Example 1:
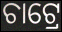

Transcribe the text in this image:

ଚାଟ୍ରେ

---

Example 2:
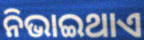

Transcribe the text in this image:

ନିଭାଇଥାଏ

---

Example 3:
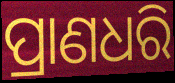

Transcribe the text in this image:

ପ୍ରାଣଧରି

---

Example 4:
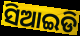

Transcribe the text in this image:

ସିଆଇଡି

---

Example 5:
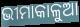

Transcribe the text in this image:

ଭୀମାକାଳୁଆ